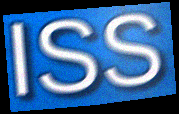
ISS